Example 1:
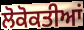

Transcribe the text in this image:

ਲੋਕੋਕਤੀਆਂ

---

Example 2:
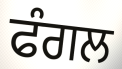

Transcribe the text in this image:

ਫੰਗਲ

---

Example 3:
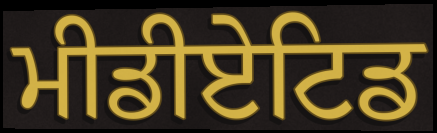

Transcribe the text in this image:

ਮੀਡੀਏਟਿਡ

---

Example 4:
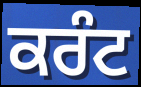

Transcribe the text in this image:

ਕਰੰਟ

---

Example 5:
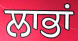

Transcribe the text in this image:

ਲਾਭਾਂ